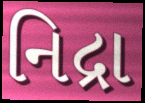
નિદ્રા